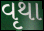
વૃથા